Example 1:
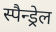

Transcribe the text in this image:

स्पैन्ड्रेल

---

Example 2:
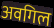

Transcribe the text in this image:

अवगिल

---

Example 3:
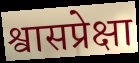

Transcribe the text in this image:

श्वासप्रेक्षा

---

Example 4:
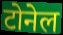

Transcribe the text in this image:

टोनेल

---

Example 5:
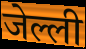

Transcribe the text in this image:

जेल्ली